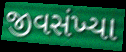
જીવસંખ્યા